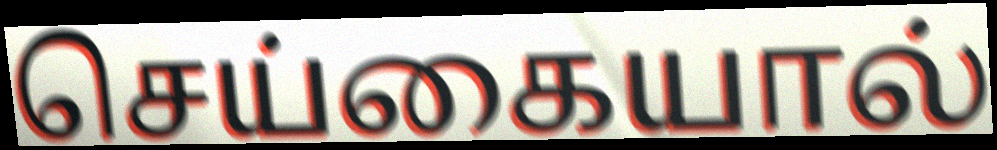
செய்கையால்